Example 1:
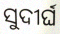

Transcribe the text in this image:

ସୁଦୀର୍ଘ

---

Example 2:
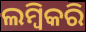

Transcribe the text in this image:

ଲମ୍ବିକରି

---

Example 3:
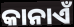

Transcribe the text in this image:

କାନାଏଁ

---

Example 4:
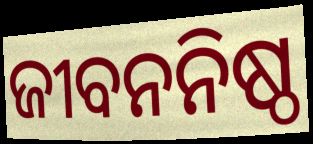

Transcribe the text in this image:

ଜୀବନନିଷ୍ଠ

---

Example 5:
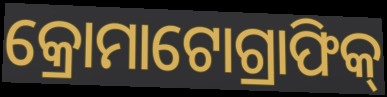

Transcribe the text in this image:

କ୍ରୋମାଟୋଗ୍ରାଫିକ୍